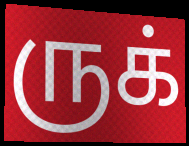
ருக்